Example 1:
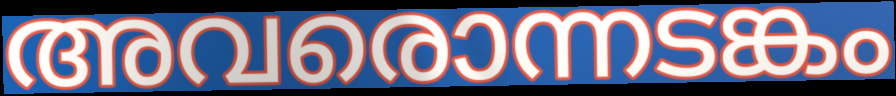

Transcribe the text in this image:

അവരൊന്നടങ്കം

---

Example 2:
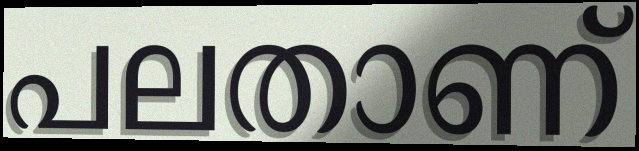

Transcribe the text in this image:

പലതാണ്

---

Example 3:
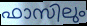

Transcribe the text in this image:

ഫാസിലും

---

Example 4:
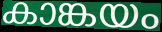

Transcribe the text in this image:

കാങ്കയം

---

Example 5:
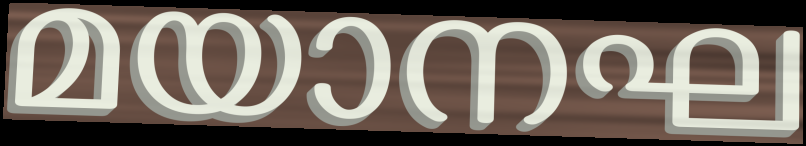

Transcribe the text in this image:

മയാനഘ